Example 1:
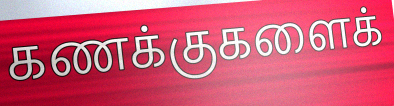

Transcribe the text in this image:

கணக்குகளைக்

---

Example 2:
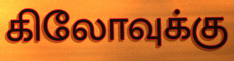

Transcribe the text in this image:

கிலோவுக்கு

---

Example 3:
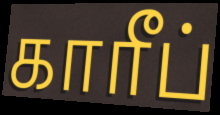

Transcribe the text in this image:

காரீப்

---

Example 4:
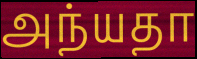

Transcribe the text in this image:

அந்யதா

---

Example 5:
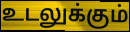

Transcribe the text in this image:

உடலுக்கும்